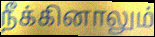
நீக்கினாலும்